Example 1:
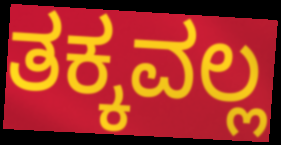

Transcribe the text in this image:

ತಕ್ಕವಲ್ಲ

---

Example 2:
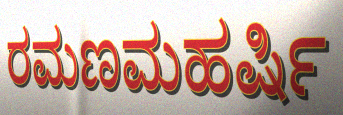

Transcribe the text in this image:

ರಮಣಮಹರ್ಷಿ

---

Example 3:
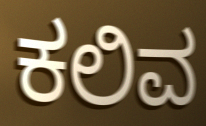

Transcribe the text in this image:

ಕಲಿವ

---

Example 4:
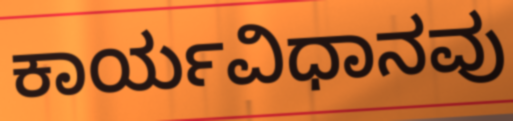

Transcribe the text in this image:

ಕಾರ್ಯವಿಧಾನವು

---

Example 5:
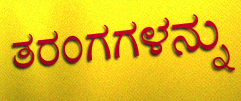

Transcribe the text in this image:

ತರಂಗಗಳನ್ನು